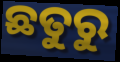
ଛତୁରୁ